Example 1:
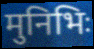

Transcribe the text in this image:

मुनिभिः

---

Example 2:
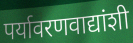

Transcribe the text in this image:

पर्यावरणवाद्यांशी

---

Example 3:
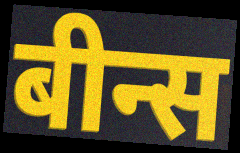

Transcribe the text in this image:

बीन्स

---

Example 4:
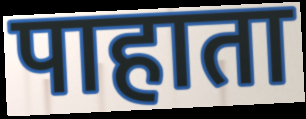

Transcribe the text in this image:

पाहाता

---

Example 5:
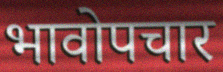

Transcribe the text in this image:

भावोपचार